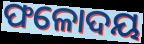
ଫଳୋଦୟ